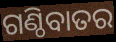
ଗଣ୍ଠିବାତର